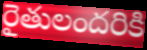
రైతులందరికి